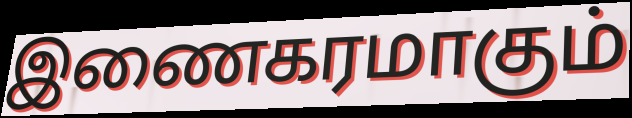
இணைகரமாகும்